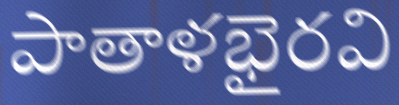
పాతాళభైరవి